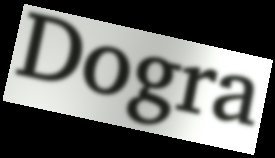
Dogra